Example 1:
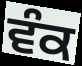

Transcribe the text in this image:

ਵੰਕ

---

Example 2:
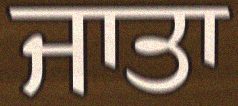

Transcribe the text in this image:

ਜਾਤਾ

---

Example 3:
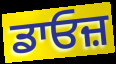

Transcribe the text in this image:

ਡਾਓਜ਼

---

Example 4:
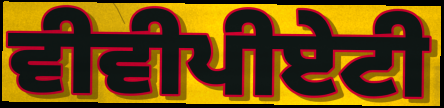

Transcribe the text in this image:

ਵੀਵੀਪੀਏਟੀ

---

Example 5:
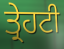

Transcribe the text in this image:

ਤ੍ਰੇਹਟੀ